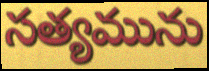
సత్యమును